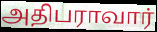
அதிபராவார்